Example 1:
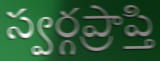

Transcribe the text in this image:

స్వర్గప్రాప్తి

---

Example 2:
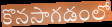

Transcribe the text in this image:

కొనసాగడంలో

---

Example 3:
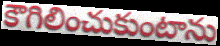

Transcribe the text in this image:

కౌగిలించుకుంటాను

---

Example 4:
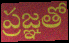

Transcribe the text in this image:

ప్రజ్ఞతో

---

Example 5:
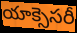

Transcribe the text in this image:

యాక్సెసరీ